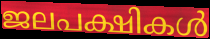
ജലപക്ഷികൾ